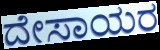
ದೇಸಾಯರ